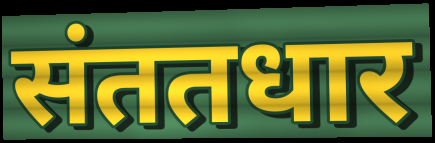
संततधार